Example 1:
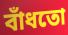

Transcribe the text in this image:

বাঁধতো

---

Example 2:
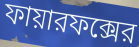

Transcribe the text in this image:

ফায়ারফক্সের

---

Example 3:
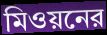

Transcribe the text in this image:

মিওয়নের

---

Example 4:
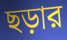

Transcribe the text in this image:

ছড়ার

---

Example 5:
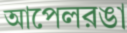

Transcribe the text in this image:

আপেলরঙা